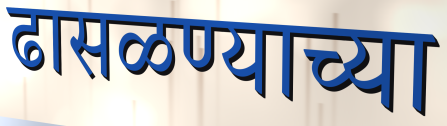
ढासळण्याच्या